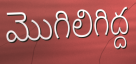
మొగిలిగిద్ద